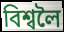
বিশ্বলৈ